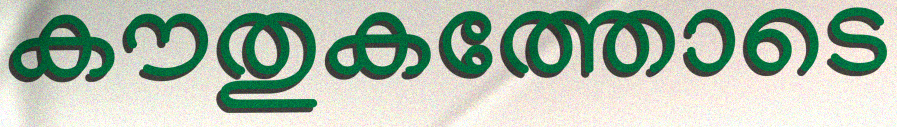
കൗതുകത്തോടെ